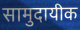
सामुदायीक